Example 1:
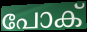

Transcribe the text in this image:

പോക്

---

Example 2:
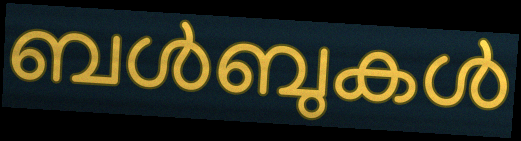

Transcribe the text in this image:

ബൾബുകൾ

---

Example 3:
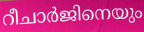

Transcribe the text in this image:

റീചാർജിനെയും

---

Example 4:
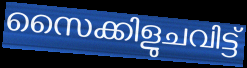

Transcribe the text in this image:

സൈക്കിളുചവിട്ട്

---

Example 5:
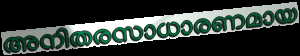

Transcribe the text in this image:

അനിതരസാധാരണമായ